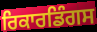
ਰਿਕਾਰਡਿੰਗਸ